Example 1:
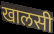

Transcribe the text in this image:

खालसी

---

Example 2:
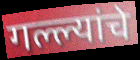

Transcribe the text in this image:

गल्ल्यांचे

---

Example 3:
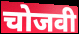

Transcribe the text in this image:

चोजवी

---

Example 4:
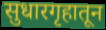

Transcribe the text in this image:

सुधारगृहातून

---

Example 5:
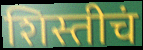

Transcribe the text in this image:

शिस्तीचं